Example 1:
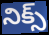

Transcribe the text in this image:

నిక్స్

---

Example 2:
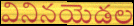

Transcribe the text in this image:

వినినయెడల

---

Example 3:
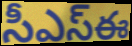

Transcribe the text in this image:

సీఎస్ఈ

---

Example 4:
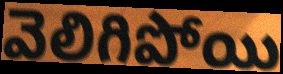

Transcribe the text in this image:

వెలిగిపోయి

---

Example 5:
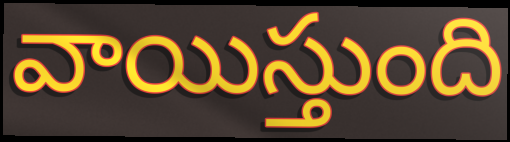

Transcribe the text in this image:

వాయిస్తుంది